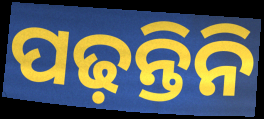
ପଢ଼ନ୍ତିନି